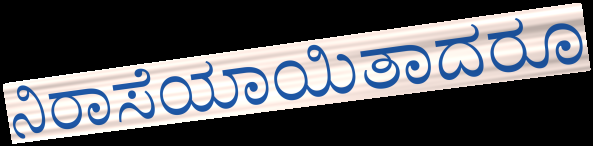
ನಿರಾಸೆಯಾಯಿತಾದರೂ